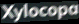
Xylocopa